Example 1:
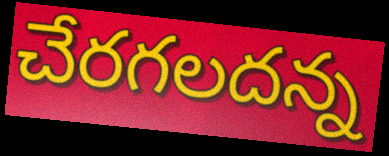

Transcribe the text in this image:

చేరగలదన్న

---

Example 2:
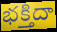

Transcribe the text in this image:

భక్తిదా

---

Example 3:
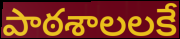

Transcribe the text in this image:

పాఠశాలలకే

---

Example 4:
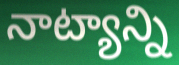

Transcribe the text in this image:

నాట్యాన్ని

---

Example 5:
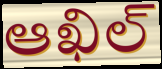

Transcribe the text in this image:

ఆఖిల్